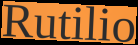
Rutilio